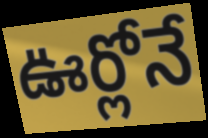
ఊర్లోనే